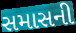
સમાસની